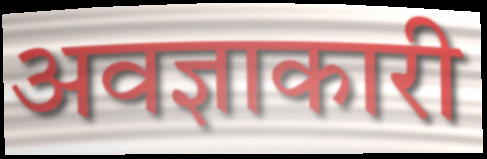
अवज्ञाकारी